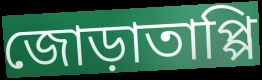
জোড়াতাপ্পি